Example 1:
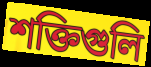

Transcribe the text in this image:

শক্তিগুলি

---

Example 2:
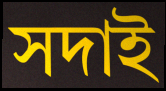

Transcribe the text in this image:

সদাই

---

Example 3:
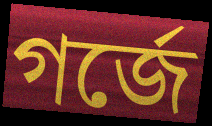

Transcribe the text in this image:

গর্জে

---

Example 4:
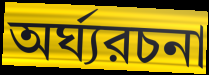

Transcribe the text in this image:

অর্ঘ্যরচনা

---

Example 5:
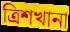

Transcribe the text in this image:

ত্রিশখানা